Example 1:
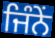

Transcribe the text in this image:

ਜਿੰਨੇਂ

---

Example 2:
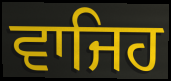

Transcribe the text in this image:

ਵਾਜਿਹ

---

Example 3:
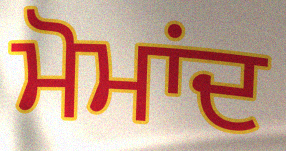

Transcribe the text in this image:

ਮੋਮਾਂਦ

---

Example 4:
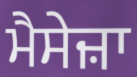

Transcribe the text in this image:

ਮੈਸੇਜ਼ਾ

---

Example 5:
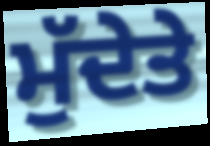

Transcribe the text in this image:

ਮੁੱਦੇਤੇ